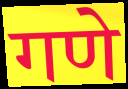
गणे